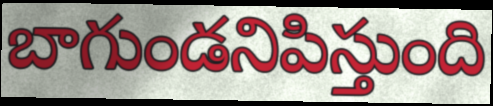
బాగుండనిపిస్తుంది